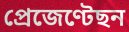
প্ৰেজেণ্টেছন